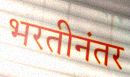
भरतीनंतर